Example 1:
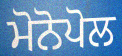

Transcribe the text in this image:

ਮੋਨੋਪੋਲ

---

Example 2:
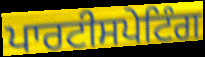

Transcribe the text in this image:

ਪਾਰਟੀਸਪੇਟਿੰਗ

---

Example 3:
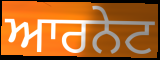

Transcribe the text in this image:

ਆਰਨੇਟ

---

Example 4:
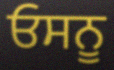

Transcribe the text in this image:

ਓਸਨੂ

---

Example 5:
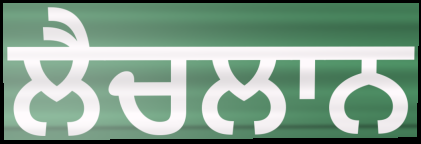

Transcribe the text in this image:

ਲੈਚਲਾਨ